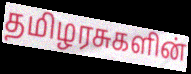
தமிழரசுகளின்